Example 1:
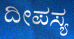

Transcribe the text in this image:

ದೀಪಸ್ಯ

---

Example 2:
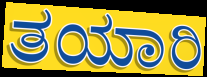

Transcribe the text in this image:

ತಯಾರಿ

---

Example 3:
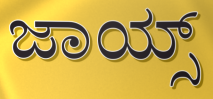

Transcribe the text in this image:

ಜಾಯ್ಸ್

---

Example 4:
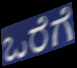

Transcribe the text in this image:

ಒರೆಗೆ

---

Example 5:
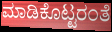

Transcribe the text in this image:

ಮಾಡಿಕೊಟ್ಟರಂತೆ